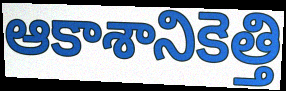
ఆకాశానికెత్తి